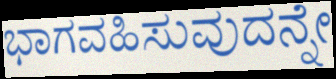
ಭಾಗವಹಿಸುವುದನ್ನೇ